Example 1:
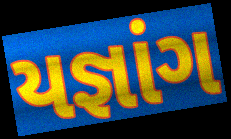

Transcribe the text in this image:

યજ્ઞાંગ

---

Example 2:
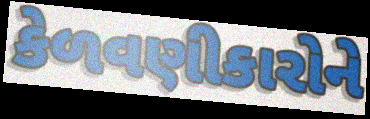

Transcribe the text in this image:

કેળવણીકારોને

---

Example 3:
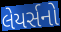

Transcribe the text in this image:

લેયર્સનો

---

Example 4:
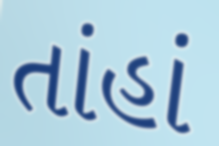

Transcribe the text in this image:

તાંહાં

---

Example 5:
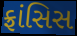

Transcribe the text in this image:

ફ્રાંસિસ